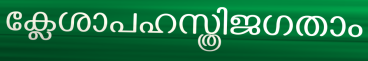
ക്ലേശാപഹസ്ത്രിജഗതാം